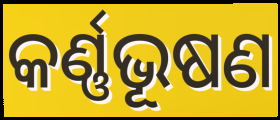
କର୍ଣ୍ଣଭୂଷଣ